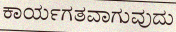
ಕಾರ್ಯಗತವಾಗುವುದು